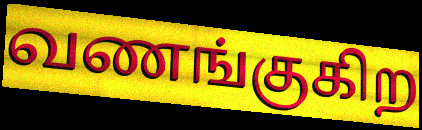
வணங்குகிற